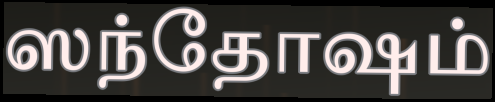
ஸந்தோஷம்